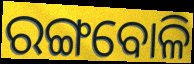
ରଙ୍ଗବୋଳି